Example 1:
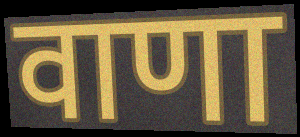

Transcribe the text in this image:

वाणा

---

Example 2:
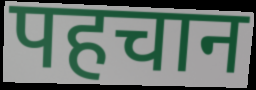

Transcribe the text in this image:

पहचान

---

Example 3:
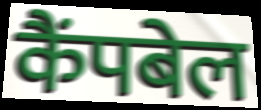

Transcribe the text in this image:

कैंपबेल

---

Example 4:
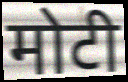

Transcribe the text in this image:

मोटी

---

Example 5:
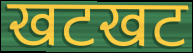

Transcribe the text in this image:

खटखट